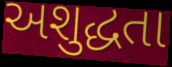
અશુદ્ધતા